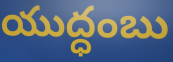
యుద్ధంబు